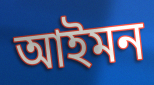
আইমন